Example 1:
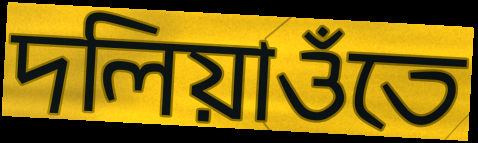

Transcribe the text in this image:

দলিয়াওঁতে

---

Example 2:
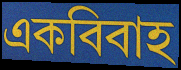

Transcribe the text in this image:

একবিবাহ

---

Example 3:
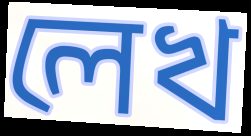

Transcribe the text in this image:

লেখ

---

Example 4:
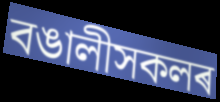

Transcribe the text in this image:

বঙালীসকলৰ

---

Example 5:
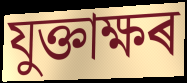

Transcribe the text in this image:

যুক্তাক্ষৰ